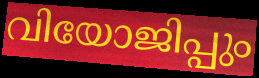
വിയോജിപ്പും